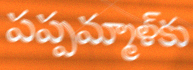
పప్పమ్మాళ్‌కు